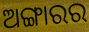
ଅଙ୍ଗାରର